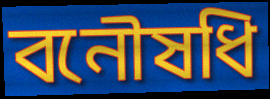
বনৌষধি